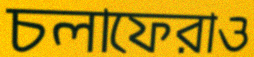
চলাফেরাও